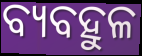
ବ୍ୟବହୁଳ